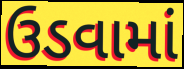
ઉડવામાં